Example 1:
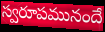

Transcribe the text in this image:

స్వరూపమునందే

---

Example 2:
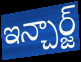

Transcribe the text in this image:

ఇన్చార్జ్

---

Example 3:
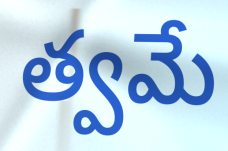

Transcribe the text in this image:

త్వమే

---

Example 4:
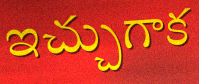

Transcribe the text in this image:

ఇచ్చుగాక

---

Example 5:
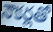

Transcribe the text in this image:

నౌకర్లతో